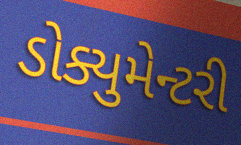
ડોક્યુમેન્ટરી